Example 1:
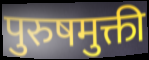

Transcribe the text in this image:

पुरुषमुक्ती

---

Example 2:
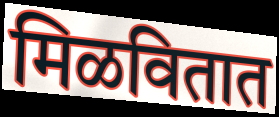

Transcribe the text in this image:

मिळवितात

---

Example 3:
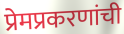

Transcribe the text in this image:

प्रेमप्रकरणांची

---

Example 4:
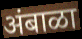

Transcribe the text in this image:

अंबाळा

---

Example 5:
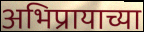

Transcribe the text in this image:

अभिप्रायाच्या